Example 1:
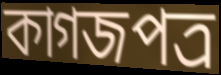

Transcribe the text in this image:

কাগজপত্ৰ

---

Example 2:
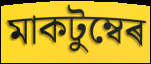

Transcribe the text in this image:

মাকটুম্বেৰ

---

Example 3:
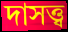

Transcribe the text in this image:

দাসত্ত্ব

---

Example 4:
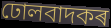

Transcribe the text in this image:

ঢোলবাদকৰ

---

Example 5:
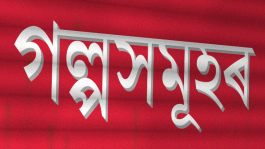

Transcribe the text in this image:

গল্পসমূহৰ